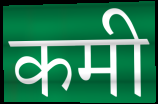
कमी